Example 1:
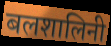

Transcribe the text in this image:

बलशालिनी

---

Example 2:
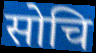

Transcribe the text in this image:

सोचि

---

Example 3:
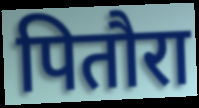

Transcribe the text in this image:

पितौरा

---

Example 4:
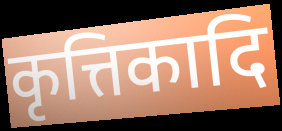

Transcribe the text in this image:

कृत्तिकादि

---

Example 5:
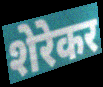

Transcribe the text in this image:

शेरेकर